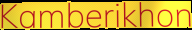
Kamberikhon